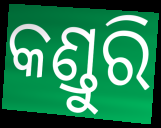
କଣ୍ଡୁରି